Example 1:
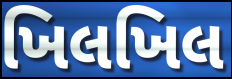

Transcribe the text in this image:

ખિલખિલ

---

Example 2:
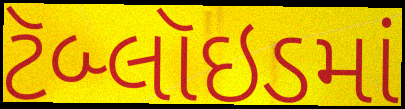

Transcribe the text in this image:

ટૅબ્લૉઇડમાં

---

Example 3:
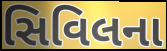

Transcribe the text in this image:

સિવિલના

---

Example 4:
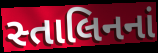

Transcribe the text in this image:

સ્તાલિનનાં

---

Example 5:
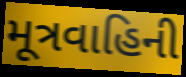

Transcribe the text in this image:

મૂત્રવાહિની